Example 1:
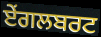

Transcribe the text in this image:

ਏਂਗਲਬਰਟ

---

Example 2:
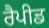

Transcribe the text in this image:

ਰੈਪੀਡ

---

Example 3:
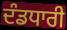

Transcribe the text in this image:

ਦੰਡਧਾਰੀ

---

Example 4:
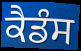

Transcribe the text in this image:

ਕੈਡੰਸ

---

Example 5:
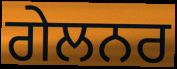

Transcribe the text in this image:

ਗੇਲਨਰ